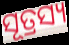
ସୂତ୍ରସ୍ୟ